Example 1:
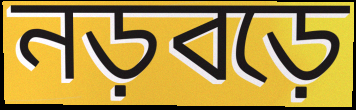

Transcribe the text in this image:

নড়বড়ে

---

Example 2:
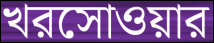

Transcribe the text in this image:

খরসোওয়ার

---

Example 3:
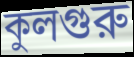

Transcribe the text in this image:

কুলগুরু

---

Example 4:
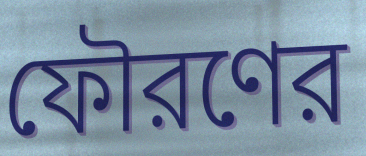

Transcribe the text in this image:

ফৌরণের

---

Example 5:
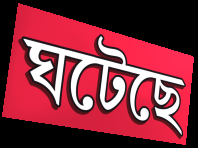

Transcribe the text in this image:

ঘটেছে